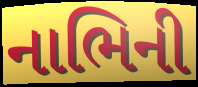
નાભિની